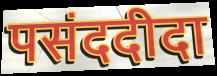
पसंददीदा